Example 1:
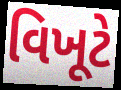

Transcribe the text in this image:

વિખૂટે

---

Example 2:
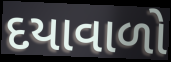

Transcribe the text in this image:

દયાવાળો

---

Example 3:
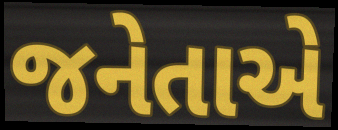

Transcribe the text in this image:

જનેતાએ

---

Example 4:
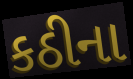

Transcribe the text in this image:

કઠીના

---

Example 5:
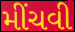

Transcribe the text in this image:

મીંચવી